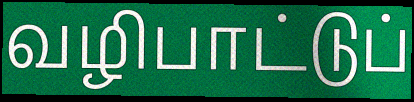
வழிபாட்டுப்